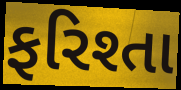
ફરિશ્તા